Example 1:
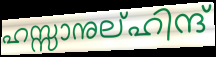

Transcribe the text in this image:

ഹസ്സാനുല്ഹിന്ദ്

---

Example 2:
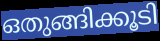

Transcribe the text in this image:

ഒതുങ്ങിക്കൂടി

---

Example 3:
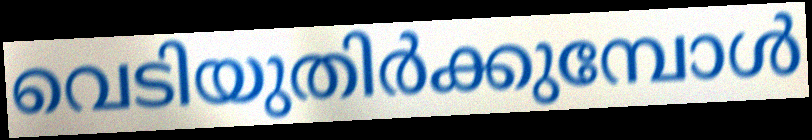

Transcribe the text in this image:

വെടിയുതിർക്കുമ്പോൾ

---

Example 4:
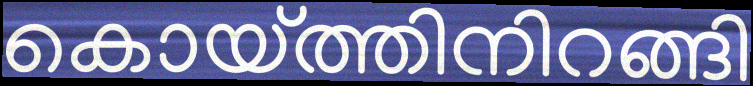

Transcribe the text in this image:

കൊയ്ത്തിനിറങ്ങി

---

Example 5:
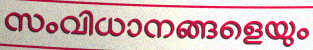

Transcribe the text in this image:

സംവിധാനങ്ങളെയും